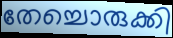
തേച്ചൊരുക്കി